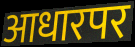
आधारपर